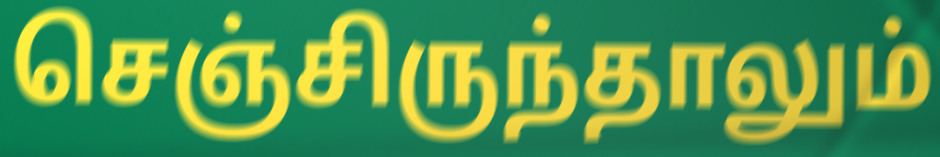
செஞ்சிருந்தாலும்